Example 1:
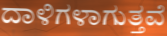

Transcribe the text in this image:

ದಾಳಿಗಳಾಗುತ್ತವೆ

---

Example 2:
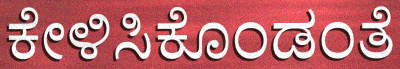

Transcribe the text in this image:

ಕೇಳಿಸಿಕೊಂಡಂತೆ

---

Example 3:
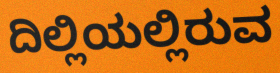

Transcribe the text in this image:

ದಿಲ್ಲಿಯಲ್ಲಿರುವ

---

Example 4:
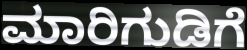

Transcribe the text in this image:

ಮಾರಿಗುಡಿಗೆ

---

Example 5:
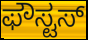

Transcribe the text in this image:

ಫೌಸ್ಟಸ್